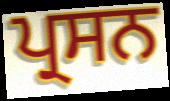
ਪ੍ਰਸਨ